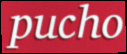
pucho